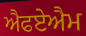
ਐਫਏਐਮ